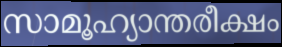
സാമൂഹ്യാന്തരീക്ഷം